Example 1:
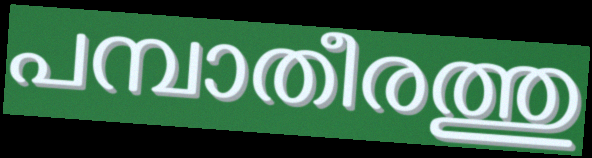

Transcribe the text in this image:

പമ്പാതീരത്തു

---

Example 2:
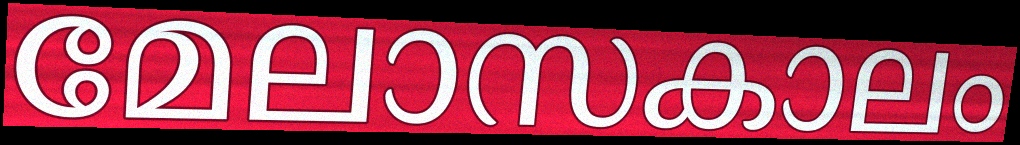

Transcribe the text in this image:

മേലാസകാലം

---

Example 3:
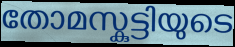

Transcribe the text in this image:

തോമസ്കുട്ടിയുടെ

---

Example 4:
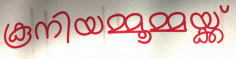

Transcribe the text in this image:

കൂനിയമ്മൂമ്മയ്ക്ക്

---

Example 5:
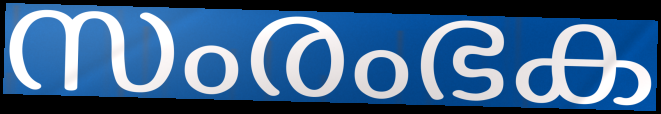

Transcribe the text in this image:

സംരംഭക